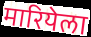
मारियेला